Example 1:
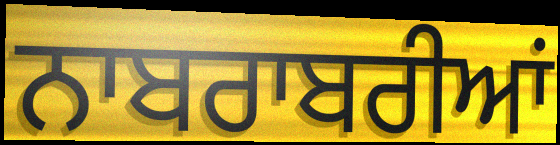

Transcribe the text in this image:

ਨਾਬਰਾਬਰੀਆਂ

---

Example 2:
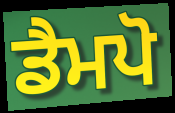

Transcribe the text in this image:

ਡੈਮਪੋ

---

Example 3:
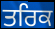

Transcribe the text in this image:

ਤਰਿਕ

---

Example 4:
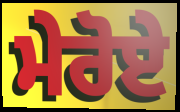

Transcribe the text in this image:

ਮੇਰੋਏ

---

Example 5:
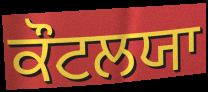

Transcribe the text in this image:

ਕੌਟਲਯਾ